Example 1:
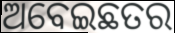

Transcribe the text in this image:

ଅବେଇଛତର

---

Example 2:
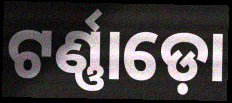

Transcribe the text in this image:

ଟର୍ଣ୍ଣାଡ଼ୋ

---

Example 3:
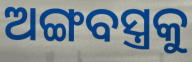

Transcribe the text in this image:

ଅଙ୍ଗବସ୍ତ୍ରକୁ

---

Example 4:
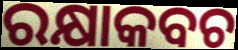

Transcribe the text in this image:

ରକ୍ଷାକବଚ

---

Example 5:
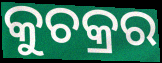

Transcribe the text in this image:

କୁଚକ୍ରର